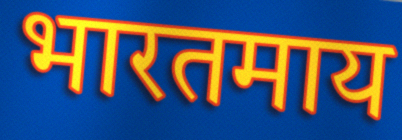
भारतमाय